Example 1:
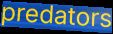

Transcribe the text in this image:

predators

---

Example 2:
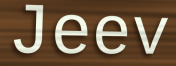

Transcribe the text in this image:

Jeev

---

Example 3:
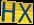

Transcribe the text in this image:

HX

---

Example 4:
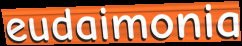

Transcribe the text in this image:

eudaimonia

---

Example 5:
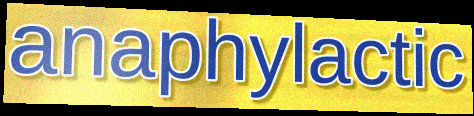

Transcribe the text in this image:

anaphylactic